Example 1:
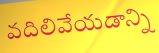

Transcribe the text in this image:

వదిలివేయడాన్ని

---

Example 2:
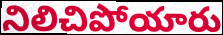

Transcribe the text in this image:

నిలిచిపోయారు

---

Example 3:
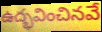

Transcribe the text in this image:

ఉద్భవించినవే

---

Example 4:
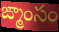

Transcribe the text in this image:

ఙ్మాంసం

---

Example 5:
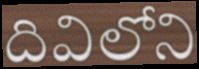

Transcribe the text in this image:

దివిలోని